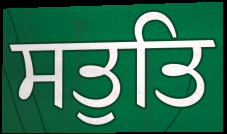
ਸਤੁਤਿ